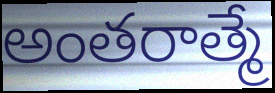
అంతరాత్మే